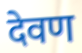
देवण